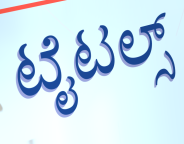
ಟೈಟಲ್ಸ್